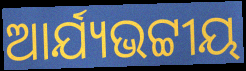
ଆର୍ଯ୍ୟଭଟ୍ଟୀୟ